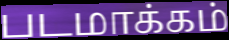
படமாக்கம்